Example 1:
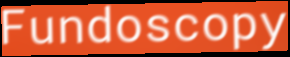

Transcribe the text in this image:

Fundoscopy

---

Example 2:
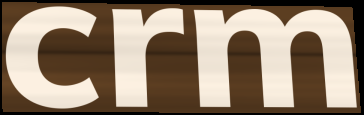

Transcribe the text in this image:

crm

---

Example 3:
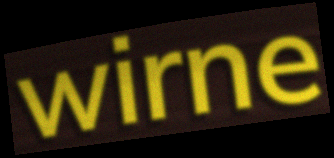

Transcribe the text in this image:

wirne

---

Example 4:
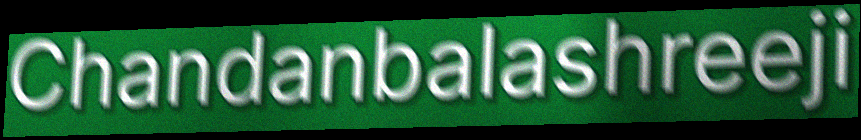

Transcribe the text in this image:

Chandanbalashreeji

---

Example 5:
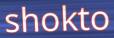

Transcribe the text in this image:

shokto